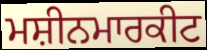
ਮਸ਼ੀਨਮਾਰਕੀਟ